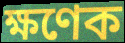
ক্ষণেক